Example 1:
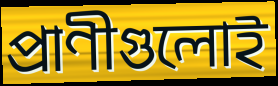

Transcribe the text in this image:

প্রাণীগুলোই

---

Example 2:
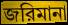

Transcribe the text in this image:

জরিমানা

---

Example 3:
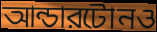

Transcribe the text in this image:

আন্ডারটোনও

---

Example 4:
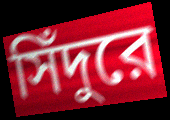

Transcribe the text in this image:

সিঁদুরে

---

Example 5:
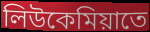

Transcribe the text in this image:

লিউকেমিয়াতে